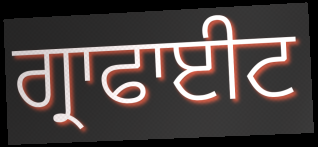
ਗ੍ਰਾਫਾਈਟ